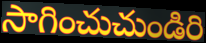
సాగించుచుండిరి